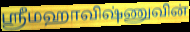
ஸ்ரீமஹாவிஷ்ணுவின்